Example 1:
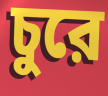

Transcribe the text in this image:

চুরে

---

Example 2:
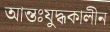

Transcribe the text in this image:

আন্তঃযুদ্ধকালীন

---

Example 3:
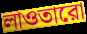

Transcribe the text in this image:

লাওতারো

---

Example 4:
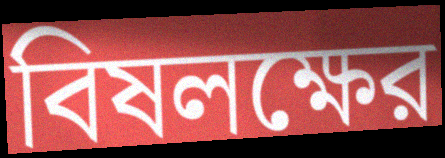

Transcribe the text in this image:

বিষলক্ষের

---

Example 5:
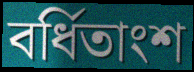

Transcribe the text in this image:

বর্ধিতাংশ